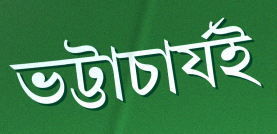
ভট্টাচাৰ্যই